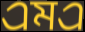
এমএ